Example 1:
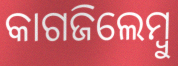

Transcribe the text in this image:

କାଗଜିଲେମ୍ବୁ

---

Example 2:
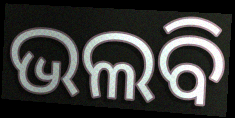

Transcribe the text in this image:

ଭଲବି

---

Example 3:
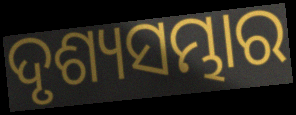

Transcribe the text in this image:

ଦୃଶ୍ୟସମ୍ଭାର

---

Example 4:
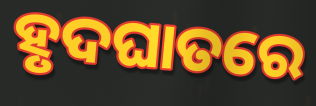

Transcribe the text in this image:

ହୃଦଘାତରେ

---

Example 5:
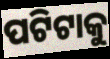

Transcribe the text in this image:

ପଟିଟାକୁ